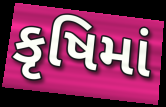
કૃષિમાં